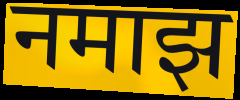
नमाझ